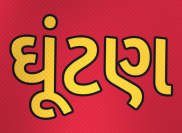
ઘૂંટણ